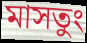
মাসতুং